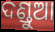
ଦଣ୍ଡୁଆ